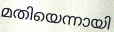
മതിയെന്നായി